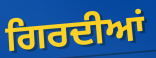
ਗਿਰਦੀਆਂ